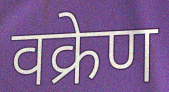
वक्रेण